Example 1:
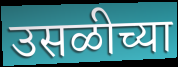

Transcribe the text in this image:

उसळीच्या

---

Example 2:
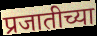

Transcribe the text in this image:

प्रजातीच्या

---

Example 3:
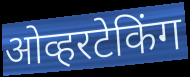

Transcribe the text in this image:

ओव्हरटेकिंग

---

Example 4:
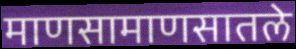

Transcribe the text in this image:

माणसामाणसातले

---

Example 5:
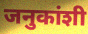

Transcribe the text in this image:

जनुकांशी